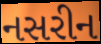
નસરીન